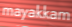
mayakkam